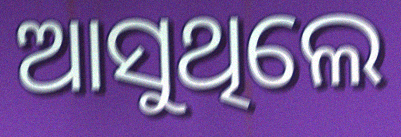
ଆସୁଥିଲେ